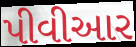
પીવીઆર